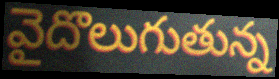
వైదొలుగుతున్న